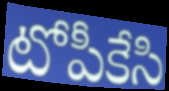
టోపీకేసి